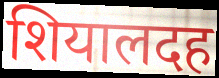
शियालदह